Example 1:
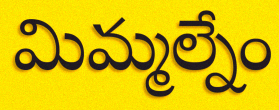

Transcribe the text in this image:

మిమ్మల్నేం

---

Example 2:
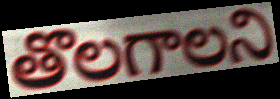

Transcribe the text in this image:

తొలగాలని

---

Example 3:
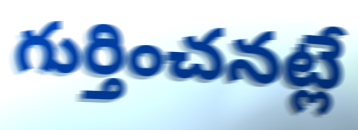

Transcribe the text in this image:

గుర్తించనట్లే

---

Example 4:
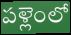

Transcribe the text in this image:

పళ్లెంలో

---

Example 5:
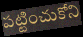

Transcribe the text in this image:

పట్టించుకోని